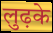
लुढ़के